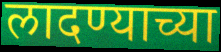
लादण्याच्या